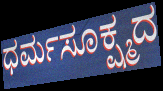
ಧರ್ಮಸೂಕ್ಷ್ಮದ